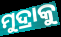
ମୁଦ୍ରାକୁ